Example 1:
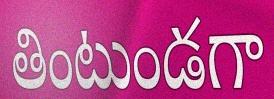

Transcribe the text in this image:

తింటుండగా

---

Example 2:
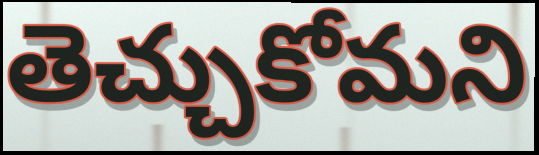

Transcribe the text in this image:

తెచ్చుకోమని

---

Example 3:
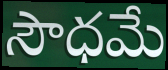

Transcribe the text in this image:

సౌధమే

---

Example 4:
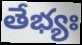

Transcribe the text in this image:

తేభ్యః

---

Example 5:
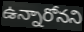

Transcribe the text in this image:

ఉన్నారోనని